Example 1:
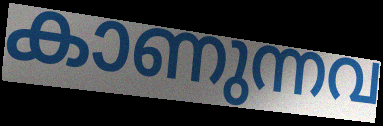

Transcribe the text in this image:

കാണുന്നവ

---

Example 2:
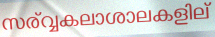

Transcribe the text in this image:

സര്വ്വകലാശാലകളില്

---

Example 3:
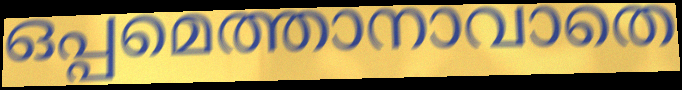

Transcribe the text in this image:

ഒപ്പമെത്താനാവാതെ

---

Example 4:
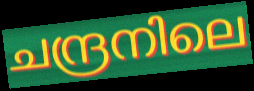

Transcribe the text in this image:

ചന്ദ്രനിലെ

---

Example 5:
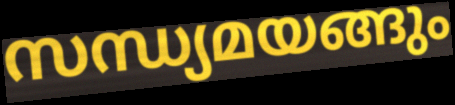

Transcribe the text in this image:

സന്ധ്യമയങ്ങും